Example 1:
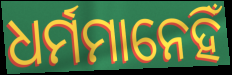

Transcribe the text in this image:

ଧର୍ମମାନେହିଁ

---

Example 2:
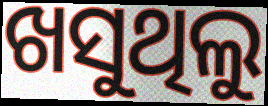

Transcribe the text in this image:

ଖସୁଥିଲୁ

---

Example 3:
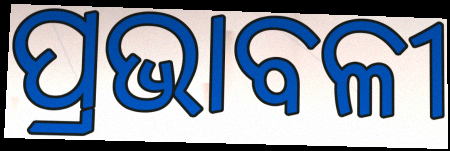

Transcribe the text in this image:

ପ୍ରଭାବଳୀ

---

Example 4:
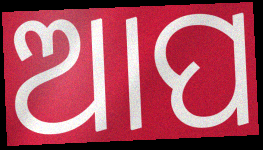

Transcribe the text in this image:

ଆପ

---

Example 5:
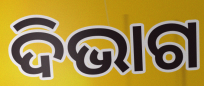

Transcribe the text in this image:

ଦିଭାଗ